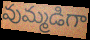
వుమ్మడిగా